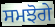
ਸਮਝੋਗੇ